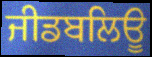
ਜੀਡਬਲਿਊ